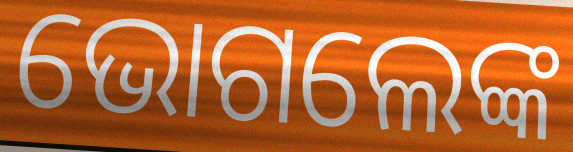
ଭୋଗଲେଙ୍କ